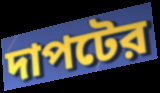
দাপটের